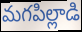
మగపిల్లాడి